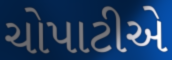
ચોપાટીએ